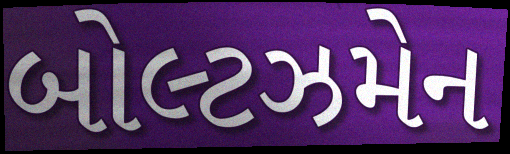
બોલ્ટઝમેન